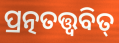
ପ୍ରତ୍ନତତ୍ତ୍ଵବିତ୍